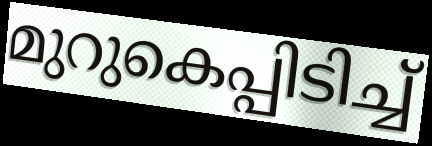
മുറുകെപ്പിടിച്ച്